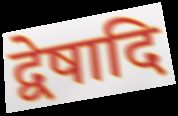
द्वेषादि